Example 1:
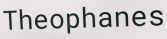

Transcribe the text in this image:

Theophanes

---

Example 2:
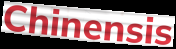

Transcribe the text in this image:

Chinensis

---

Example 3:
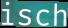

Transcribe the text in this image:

isch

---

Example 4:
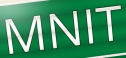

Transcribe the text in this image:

MNIT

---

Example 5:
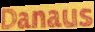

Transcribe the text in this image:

Danaus